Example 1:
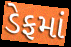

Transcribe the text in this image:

ડેફમાં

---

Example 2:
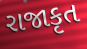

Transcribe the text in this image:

રાજાકૃત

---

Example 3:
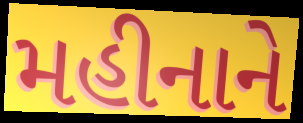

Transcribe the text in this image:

મહીનાને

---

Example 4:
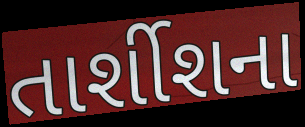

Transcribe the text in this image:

તાર્શીશના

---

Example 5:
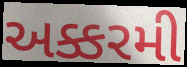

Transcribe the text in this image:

અક્કરમી